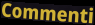
Commenti